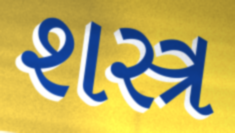
શસ્ત્ર